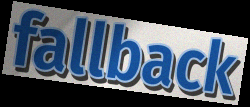
fallback